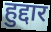
हुद्दार